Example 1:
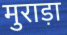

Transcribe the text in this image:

मुराड़ा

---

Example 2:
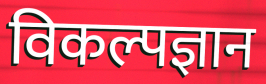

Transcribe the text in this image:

विकल्पज्ञान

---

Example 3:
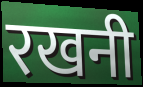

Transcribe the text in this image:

रखनी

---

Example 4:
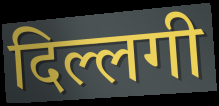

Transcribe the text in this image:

दिल्‍लगी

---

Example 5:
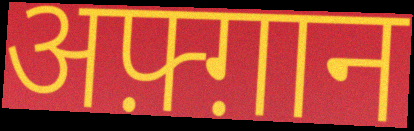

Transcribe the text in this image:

अफ़्ग़ान